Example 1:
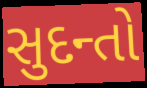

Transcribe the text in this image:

સુદન્તો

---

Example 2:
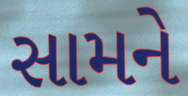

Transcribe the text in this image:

સામને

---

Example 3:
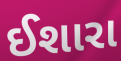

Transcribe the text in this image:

ઈશારા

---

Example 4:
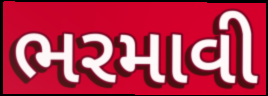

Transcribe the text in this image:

ભરમાવી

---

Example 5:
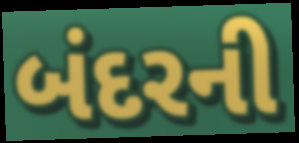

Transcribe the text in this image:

બંદરની